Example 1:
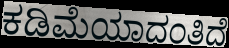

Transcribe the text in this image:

ಕಡಿಮೆಯಾದಂತಿದೆ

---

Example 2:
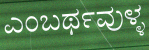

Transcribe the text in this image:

ಎಂಬರ್ಥವುಳ್ಳ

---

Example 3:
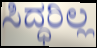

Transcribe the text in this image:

ಸಿದ್ಧರಿಲ್ಲ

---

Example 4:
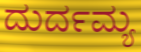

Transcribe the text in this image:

ದುರ್ದಮ್ಯ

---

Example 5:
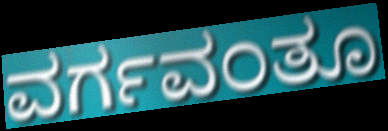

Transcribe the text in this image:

ವರ್ಗವಂತೂ